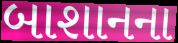
બાશાનના